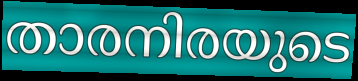
താരനിരയുടെ